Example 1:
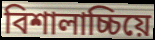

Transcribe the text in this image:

বিশালাচ্চিয়ে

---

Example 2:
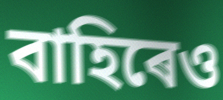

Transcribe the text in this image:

বাহিৰেও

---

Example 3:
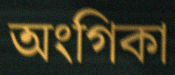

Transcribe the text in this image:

অংগিকা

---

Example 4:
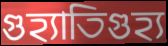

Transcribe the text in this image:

গুহ্যাতিগুহ্য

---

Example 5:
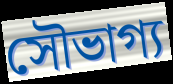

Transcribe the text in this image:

সৌভাগ্য